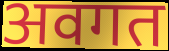
अवगत